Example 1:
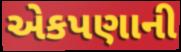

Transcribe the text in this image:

એકપણાની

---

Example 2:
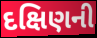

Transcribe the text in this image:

દક્ષિણની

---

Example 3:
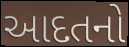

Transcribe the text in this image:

આદતનો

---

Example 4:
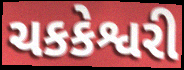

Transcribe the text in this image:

ચકકેશ્વરી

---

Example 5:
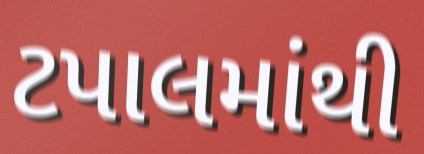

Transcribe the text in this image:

ટપાલમાંથી